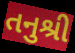
તનુશ્રી